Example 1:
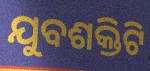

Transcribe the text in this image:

ଯୁବଶକ୍ତିଟି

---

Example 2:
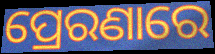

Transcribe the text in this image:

ପ୍ରେରଣାରେ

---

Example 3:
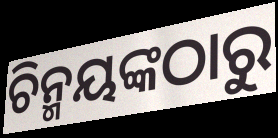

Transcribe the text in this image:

ଚିନ୍ମୟଙ୍କଠାରୁ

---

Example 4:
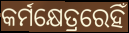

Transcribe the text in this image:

କର୍ମକ୍ଷେତ୍ରରେହିଁ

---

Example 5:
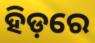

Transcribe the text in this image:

ହିଡ଼ରେ